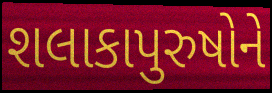
શલાકાપુરુષોને